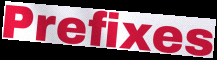
Prefixes